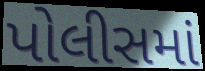
પોલીસમાં